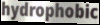
hydrophobic